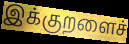
இக்குறளைச்